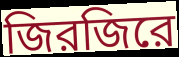
জিরজিরে